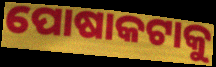
ପୋଷାକଟାକୁ